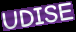
UDISE